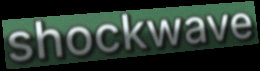
shockwave